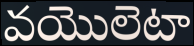
వయొలెటా